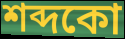
শব্দকো